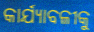
କାର୍ଯ୍ୟାବଳୀକୁ